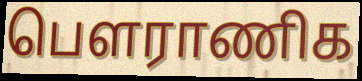
பௌராணிக